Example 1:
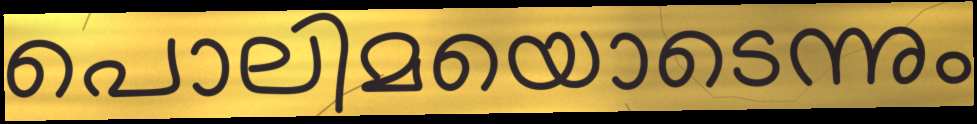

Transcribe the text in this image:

പൊലിമയൊടെന്നും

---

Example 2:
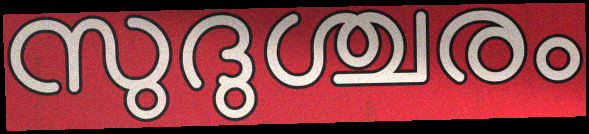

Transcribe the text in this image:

സുദുശ്ചരം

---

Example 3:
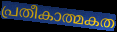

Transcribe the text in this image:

പ്രതീകാത്മകത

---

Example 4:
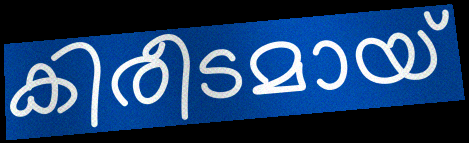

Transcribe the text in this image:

കിരീടമായ്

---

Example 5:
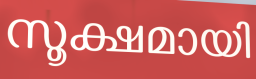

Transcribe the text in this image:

സൂക്ഷമായി